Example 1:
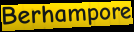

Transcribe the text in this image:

Berhampore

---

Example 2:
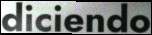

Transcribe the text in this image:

diciendo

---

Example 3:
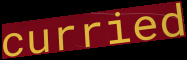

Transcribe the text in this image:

curried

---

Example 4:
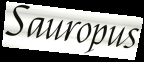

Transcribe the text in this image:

Sauropus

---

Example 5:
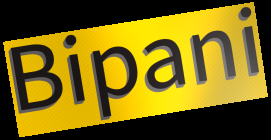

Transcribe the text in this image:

Bipani